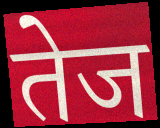
तेज